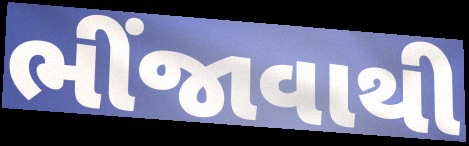
ભીંજાવાથી